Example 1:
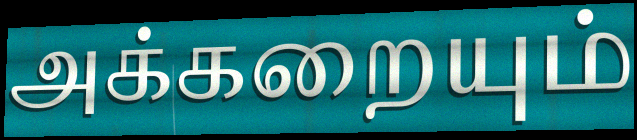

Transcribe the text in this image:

அக்கறையும்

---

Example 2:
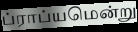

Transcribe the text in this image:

ப்ராப்யமென்று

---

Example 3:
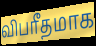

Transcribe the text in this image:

விபரீதமாக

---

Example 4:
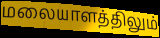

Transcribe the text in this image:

மலையாளத்திலும்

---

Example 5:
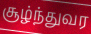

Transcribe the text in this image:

சூழ்ந்துவர